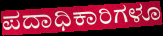
ಪದಾಧಿಕಾರಿಗಳೂ